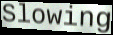
Slowing